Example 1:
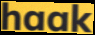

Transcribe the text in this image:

haak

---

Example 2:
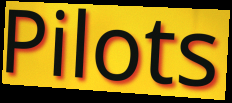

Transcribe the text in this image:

Pilots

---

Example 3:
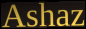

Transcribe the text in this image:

Ashaz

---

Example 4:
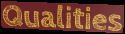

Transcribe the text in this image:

Qualities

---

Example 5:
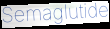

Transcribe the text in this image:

Semaglutide